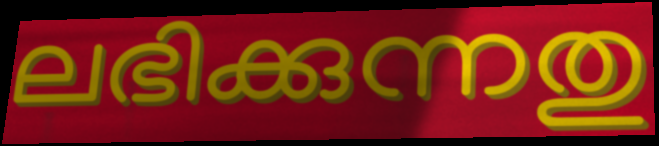
ലഭിക്കുന്നതു